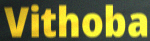
Vithoba